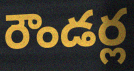
రౌండర్ల